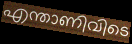
എന്താണിവിടെ